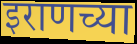
इराणच्या